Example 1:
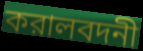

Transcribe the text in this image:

করালবদনী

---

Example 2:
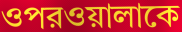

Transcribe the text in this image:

ওপরওয়ালাকে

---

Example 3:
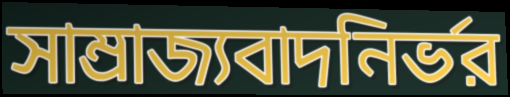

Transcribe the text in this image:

সাম্রাজ্যবাদনির্ভর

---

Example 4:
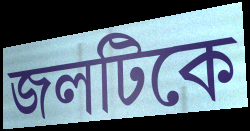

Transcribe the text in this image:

জলটিকে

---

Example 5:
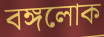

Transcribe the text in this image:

বঙ্গলোক